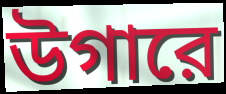
উগারে